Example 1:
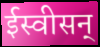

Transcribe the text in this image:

ईस्वीसन्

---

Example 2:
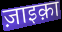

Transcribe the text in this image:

ज़ाइक़ा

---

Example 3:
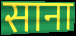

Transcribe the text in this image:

साना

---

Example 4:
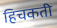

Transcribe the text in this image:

हिचकती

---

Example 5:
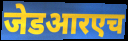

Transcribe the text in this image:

जेडआरएच